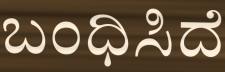
ಬಂಧಿಸಿದೆ